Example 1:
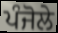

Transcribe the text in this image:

ਪੰਜੋਲੇ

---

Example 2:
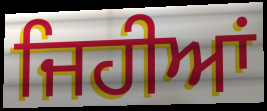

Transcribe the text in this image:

ਜਿਹੀਆਂ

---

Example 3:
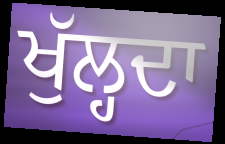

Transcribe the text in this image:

ਖੁੱਲ੍ਹਦਾ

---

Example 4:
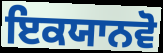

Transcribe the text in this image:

ਇਕਯਾਨਵੋ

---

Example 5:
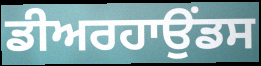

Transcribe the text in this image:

ਡੀਅਰਹਾਉਂਡਸ